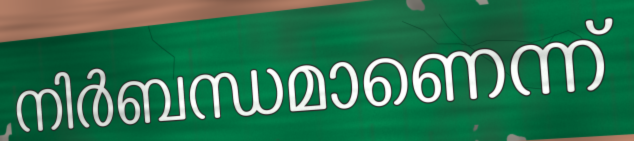
നിർബന്ധമാണെന്ന്